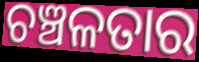
ଚଞ୍ଚଳତାର